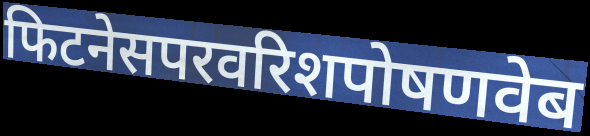
फिटनेसपरवरिशपोषणवेब